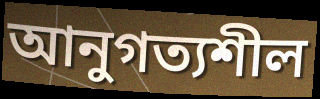
আনুগত্যশীল